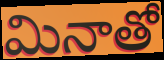
మినాతో